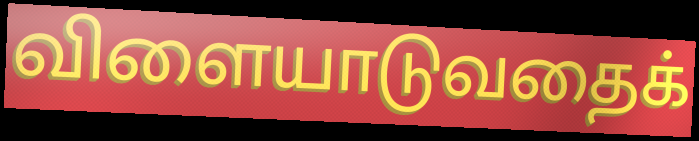
விளையாடுவதைக்